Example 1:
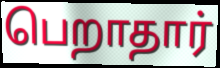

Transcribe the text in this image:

பெறாதார்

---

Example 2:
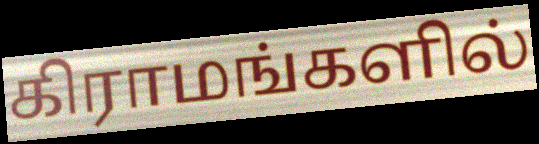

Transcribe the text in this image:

கிராமங்களில்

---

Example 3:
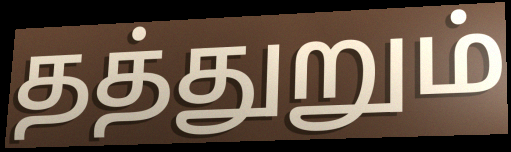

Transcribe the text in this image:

தத்துறும்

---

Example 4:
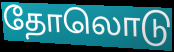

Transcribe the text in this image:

தோலொடு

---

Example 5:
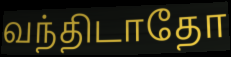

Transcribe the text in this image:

வந்திடாதோ